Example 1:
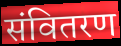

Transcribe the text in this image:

संवितरण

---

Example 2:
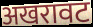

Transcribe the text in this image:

अखरावट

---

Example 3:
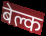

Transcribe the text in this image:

बेल्क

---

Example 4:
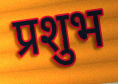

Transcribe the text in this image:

प्रशुभ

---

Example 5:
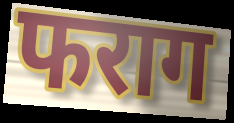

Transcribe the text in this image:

फराग